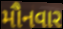
મૌનવાર